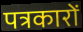
पत्रकारों